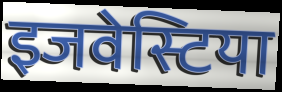
इजवेस्टिया